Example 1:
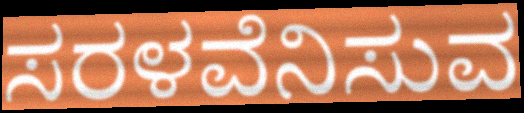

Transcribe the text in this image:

ಸರಳವೆನಿಸುವ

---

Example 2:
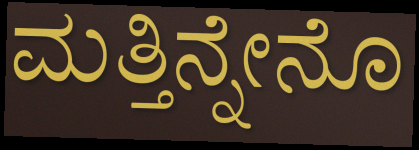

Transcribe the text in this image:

ಮತ್ತಿನ್ನೇನೊ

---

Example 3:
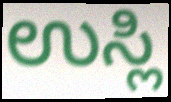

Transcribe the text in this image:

ಉಸ್ಲಿ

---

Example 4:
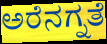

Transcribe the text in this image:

ಅರೆನಗ್ನತೆ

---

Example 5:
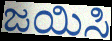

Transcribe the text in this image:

ಜಯಿಸಿ